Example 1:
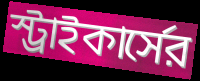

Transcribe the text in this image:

স্ট্রাইকার্সের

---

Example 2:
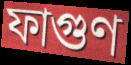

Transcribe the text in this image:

ফাগুণ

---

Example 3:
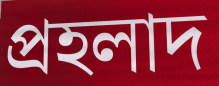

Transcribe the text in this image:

প্রহলাদ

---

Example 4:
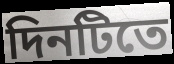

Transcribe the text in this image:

দিনটিতে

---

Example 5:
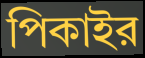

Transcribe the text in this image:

পিকাইর